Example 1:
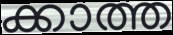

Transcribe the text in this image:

ക്കാത്ത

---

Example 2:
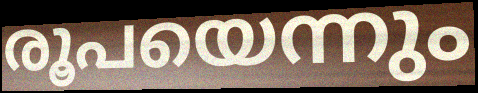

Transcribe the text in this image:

രൂപയെന്നും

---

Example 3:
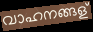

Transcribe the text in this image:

വാഹനങ്ങള്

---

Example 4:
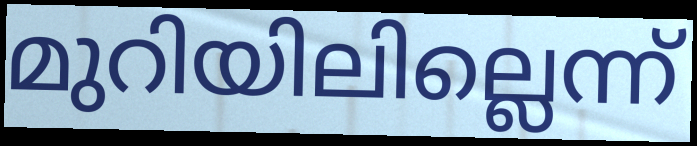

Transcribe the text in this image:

മുറിയിലില്ലെന്ന്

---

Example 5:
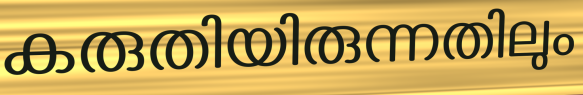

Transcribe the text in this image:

കരുതിയിരുന്നതിലും